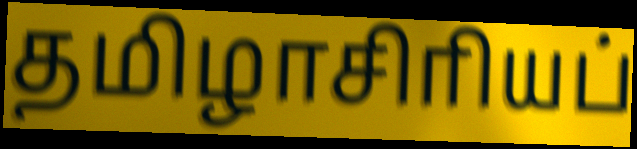
தமிழாசிரியப்